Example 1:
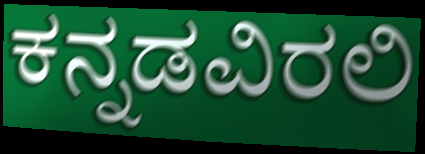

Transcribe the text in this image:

ಕನ್ನಡವಿರಲಿ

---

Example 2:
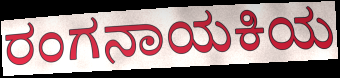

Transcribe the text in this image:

ರಂಗನಾಯಕಿಯ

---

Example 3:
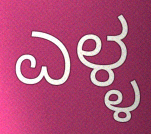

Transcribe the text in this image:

ಎಳ್ಳ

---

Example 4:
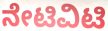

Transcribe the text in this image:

ನೇಟಿವಿಟಿ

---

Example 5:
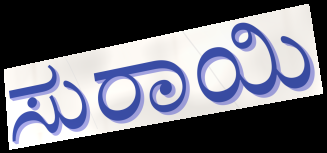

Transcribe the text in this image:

ಸುರಾಯಿ